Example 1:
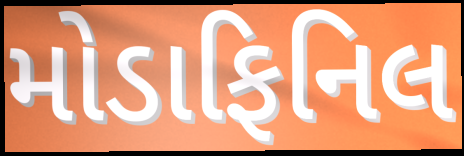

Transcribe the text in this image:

મોડાફિનિલ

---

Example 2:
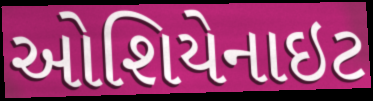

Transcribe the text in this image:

ઓશિયેનાઇટ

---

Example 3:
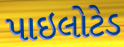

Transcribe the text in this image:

પાઇલોટેડ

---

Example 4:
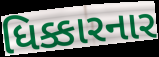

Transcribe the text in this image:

ધિક્કારનાર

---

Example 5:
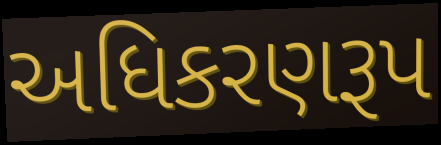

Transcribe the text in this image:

અધિકરણરૂપ